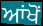
ਆਂਖੋਂ